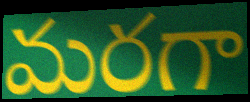
మరగా